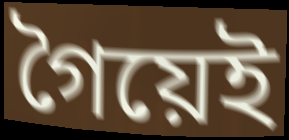
গৈয়েই